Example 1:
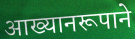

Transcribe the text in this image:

आख्यानरूपाने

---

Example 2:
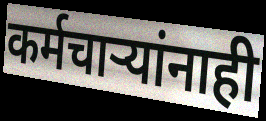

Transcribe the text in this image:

कर्मचार्‍यांनाही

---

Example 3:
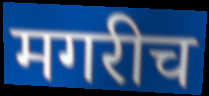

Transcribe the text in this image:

मगरीच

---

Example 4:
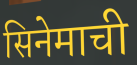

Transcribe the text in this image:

सिनेमाची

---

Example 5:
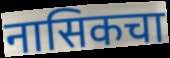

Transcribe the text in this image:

नासिकचा